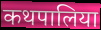
कथपालिया